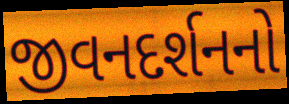
જીવનદર્શનનો